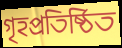
গৃহপ্রতিষ্ঠিত